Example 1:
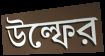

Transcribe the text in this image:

উল্ফের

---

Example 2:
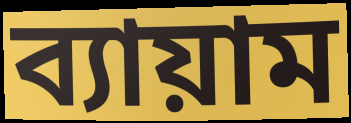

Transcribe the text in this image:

ব্যায়াম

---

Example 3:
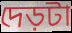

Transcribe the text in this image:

দেড়টা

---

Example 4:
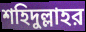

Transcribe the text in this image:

শহিদুল্লাহর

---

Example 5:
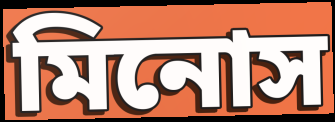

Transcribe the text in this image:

মিনোস